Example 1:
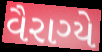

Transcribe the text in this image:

વૈરાગ્યે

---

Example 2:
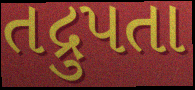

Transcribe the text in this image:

તદ્રુપતા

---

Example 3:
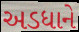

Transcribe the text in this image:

અડધાને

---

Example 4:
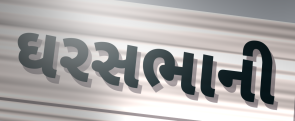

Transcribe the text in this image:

ઘરસભાની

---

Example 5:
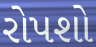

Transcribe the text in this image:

રોપશો